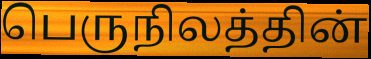
பெருநிலத்தின்